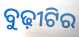
ବୁଢ଼ୀଟିର